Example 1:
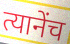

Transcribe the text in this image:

त्यानेंच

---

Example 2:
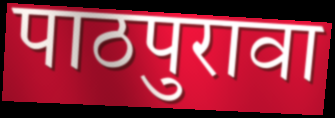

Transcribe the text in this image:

पाठपुरावा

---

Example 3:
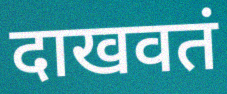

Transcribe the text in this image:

दाखवतं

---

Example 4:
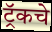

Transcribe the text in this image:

ट्रॅकचे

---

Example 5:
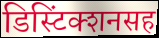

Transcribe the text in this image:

डिस्टिंक्शनसह